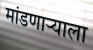
मांडणाऱ्याला